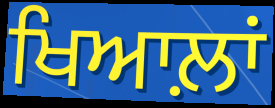
ਖਿਆਲ਼ਾਂ